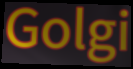
Golgi